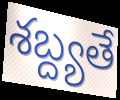
శబ్ద్యతే